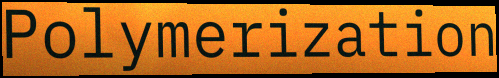
Polymerization